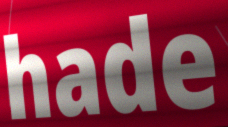
hade